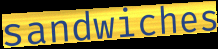
sandwiches